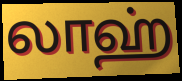
லாஹ்